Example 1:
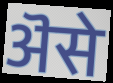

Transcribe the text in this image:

ऄसे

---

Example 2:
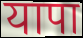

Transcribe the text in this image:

यापा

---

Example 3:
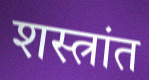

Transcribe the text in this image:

शस्त्रांत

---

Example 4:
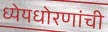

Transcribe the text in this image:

ध्येयधोरणांची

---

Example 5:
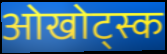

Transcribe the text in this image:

ओखोट्स्क